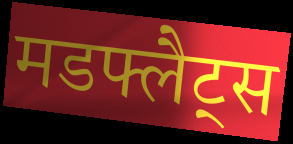
मडफ्लैट्स